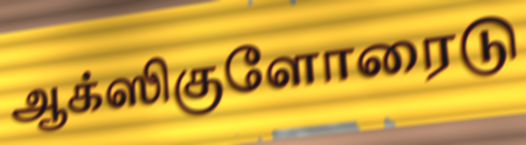
ஆக்ஸிகுளோரைடு